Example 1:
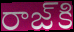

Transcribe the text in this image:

రాజ్‌కి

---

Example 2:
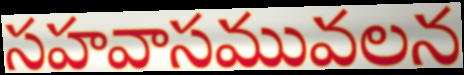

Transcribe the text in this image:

సహవాసమువలన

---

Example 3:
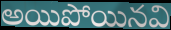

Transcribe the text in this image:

అయిపోయినవి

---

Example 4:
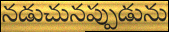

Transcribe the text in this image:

నడుచునప్పుడును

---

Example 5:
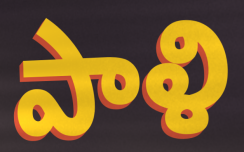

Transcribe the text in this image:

పాళి